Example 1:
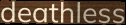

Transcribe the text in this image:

deathless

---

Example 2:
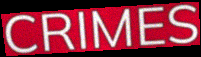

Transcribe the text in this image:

CRIMES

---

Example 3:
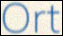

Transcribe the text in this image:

Ort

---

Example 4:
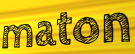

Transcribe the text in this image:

maton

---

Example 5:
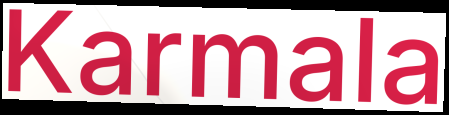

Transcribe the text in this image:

Karmala